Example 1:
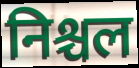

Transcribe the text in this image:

निश्चल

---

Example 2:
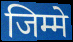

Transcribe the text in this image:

जिम्मे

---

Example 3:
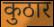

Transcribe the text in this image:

कुठार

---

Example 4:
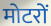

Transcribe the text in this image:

मोटरों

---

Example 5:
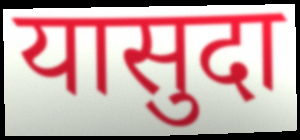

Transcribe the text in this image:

यासुदा